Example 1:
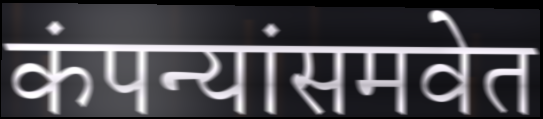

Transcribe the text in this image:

कंपन्यांसमवेत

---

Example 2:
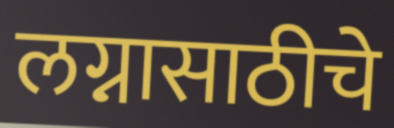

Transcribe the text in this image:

लग्नासाठीचे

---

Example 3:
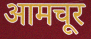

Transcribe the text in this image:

आमचूर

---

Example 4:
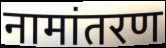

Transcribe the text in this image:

नामांतरण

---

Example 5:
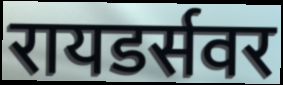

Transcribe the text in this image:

रायडर्सवर